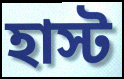
হাস্ট